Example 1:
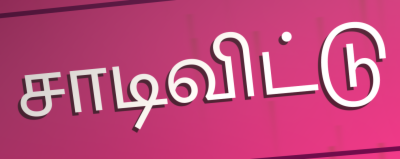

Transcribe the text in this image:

சாடிவிட்டு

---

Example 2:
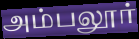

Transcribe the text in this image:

அம்பலூர்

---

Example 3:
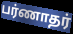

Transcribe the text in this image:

பர்ணாதர்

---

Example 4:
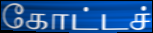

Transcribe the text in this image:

கோட்டச்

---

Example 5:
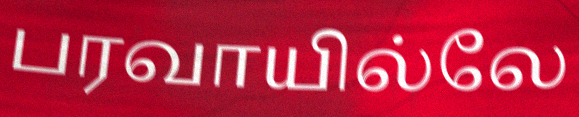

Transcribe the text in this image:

பரவாயில்லே